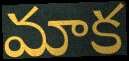
మాక